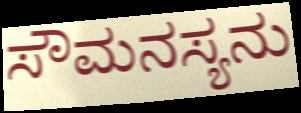
ಸೌಮನಸ್ಯನು